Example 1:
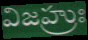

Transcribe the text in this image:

విజహ్రుః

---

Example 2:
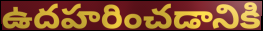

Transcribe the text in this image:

ఉదహరించడానికి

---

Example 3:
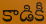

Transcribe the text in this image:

కాడికీ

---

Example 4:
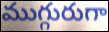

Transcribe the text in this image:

ముగ్గురుగా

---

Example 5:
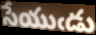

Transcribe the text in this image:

సేయుఁడు